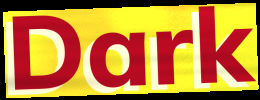
Dark